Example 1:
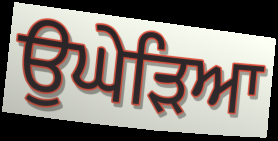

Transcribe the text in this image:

ਉਘੇੜਿਆ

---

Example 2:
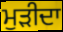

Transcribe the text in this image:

ਮੁੜੀਦਾ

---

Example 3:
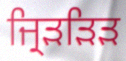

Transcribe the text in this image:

ਜ੍ਰਿੜੜਿੜ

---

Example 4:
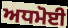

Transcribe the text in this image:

ਅਧਮੋਈ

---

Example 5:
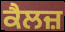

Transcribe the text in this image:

ਕੈਲਜ਼